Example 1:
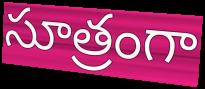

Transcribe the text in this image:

సూత్రంగా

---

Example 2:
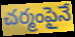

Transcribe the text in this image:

చర్మంపైనే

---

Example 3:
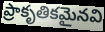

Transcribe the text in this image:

ప్రాకృతికమైనవి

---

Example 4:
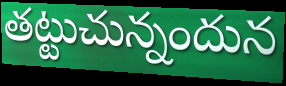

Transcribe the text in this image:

తట్టుచున్నందున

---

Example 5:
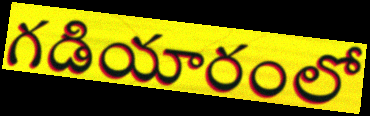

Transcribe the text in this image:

గడియారంలో